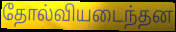
தோல்வியடைந்தன